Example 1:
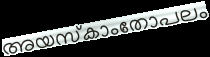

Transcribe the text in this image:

അയസ്കാംതോപലം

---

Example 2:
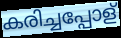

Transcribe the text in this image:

കരിച്ചപ്പോള്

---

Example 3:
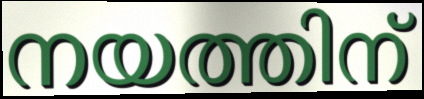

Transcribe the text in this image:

നയത്തിന്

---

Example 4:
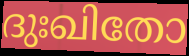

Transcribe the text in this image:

ദുഃഖിതോ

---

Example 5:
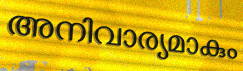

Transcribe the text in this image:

അനിവാര്യമാകും